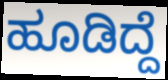
ಹೂಡಿದ್ದೆ